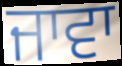
ਜਾਵਾ